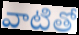
వాటితో